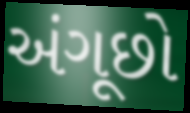
અંગૂછો